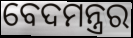
ବେଦମନ୍ତ୍ରର